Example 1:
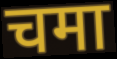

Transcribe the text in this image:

चमा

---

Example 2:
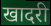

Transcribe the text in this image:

खादरी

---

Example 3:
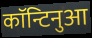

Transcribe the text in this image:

कॉन्टिनुआ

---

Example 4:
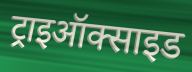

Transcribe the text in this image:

ट्राइऑक्साइड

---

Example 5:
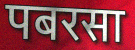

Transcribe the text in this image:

पबरसा